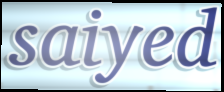
saiyed